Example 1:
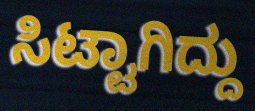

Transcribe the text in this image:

ಸಿಟ್ಟಾಗಿದ್ದು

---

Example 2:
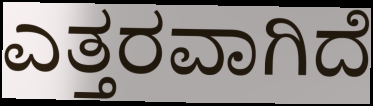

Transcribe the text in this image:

ಎತ್ತರವಾಗಿದೆ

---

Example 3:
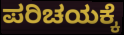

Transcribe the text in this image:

ಪರಿಚಯಕ್ಕೆ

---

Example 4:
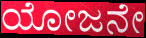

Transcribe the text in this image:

ಯೋಜನೇ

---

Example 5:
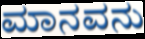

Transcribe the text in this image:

ಮಾನವನು